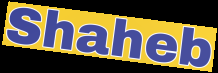
Shaheb